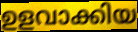
ഉളവാക്കിയ